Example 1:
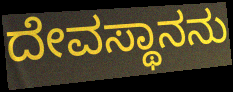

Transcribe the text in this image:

ದೇವಸ್ಥಾನನು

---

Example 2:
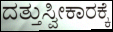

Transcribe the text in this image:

ದತ್ತುಸ್ವೀಕಾರಕ್ಕೆ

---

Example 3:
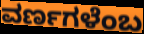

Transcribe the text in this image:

ವರ್ಣಗಳೆಂಬ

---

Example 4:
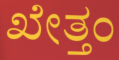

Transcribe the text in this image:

ಖೇತ್ತಂ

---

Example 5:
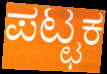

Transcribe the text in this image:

ಪಟ್ಟಕ